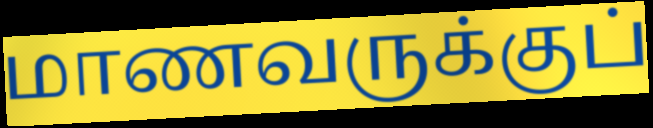
மாணவருக்குப்